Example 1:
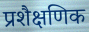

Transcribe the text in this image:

प्रशैक्षणिक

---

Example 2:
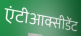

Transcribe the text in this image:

एंटीआक्सीडेंट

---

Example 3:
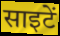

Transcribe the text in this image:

साइटें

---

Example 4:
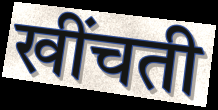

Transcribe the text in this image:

खींचती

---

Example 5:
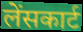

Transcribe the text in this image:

लेंसकार्ट